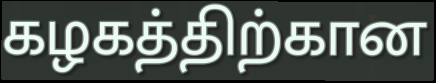
கழகத்திற்கான